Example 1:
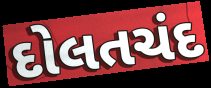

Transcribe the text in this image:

દોલતચંદ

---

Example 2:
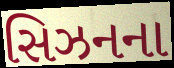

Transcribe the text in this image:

સિઝનના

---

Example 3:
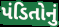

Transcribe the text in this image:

પંડિતોનું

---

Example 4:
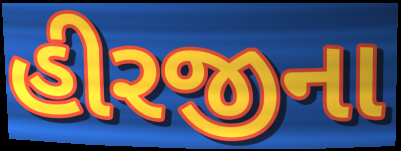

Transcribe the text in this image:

હીરજીના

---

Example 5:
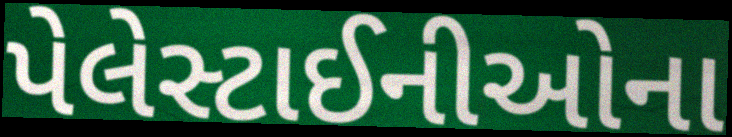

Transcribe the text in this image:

પેલેસ્ટાઈનીઓના